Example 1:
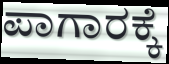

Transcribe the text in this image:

ಪಾಗಾರಕ್ಕೆ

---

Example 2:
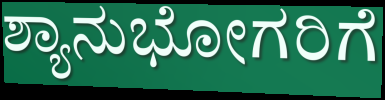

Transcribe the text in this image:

ಶ್ಯಾನುಭೋಗರಿಗೆ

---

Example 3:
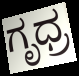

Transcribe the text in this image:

ಗೃಧ್ರ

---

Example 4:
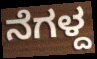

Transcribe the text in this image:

ನೆಗಳ್ದ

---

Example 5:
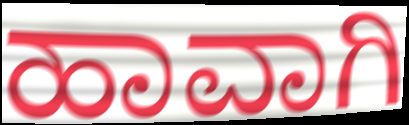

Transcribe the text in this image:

ಹಾವಾಗಿ